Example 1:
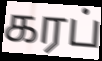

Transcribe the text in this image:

கரப்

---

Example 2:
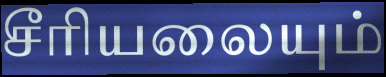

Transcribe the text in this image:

சீரியலையும்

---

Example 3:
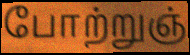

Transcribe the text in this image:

போற்றுஞ்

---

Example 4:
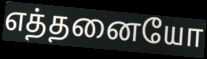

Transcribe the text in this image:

எத்தனையோ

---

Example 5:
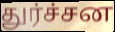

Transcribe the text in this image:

துர்ச்சன